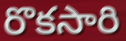
రొకసారి